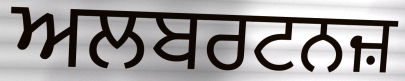
ਅਲਬਰਟਨਜ਼